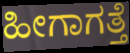
ಹೀಗಾಗತ್ತೆ